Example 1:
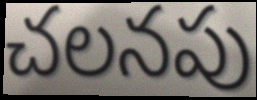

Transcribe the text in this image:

చలనపు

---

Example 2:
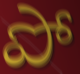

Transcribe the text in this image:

పో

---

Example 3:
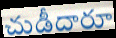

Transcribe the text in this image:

చుడీదారూ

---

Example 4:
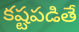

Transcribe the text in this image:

కష్టపడితే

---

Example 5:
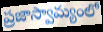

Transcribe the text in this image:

ప్రజాస్వామ్యంలో